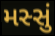
મસ્સું